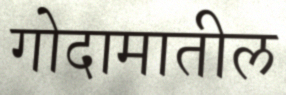
गोदामातील